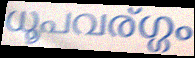
ധൂപവര്ഗ്ഗം